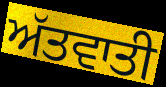
ਅੱਤਵਾਤੀ